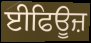
ਈਫਿਊਜ਼